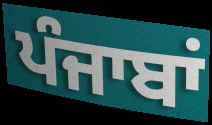
ਪੰਜਾਬਾਂ